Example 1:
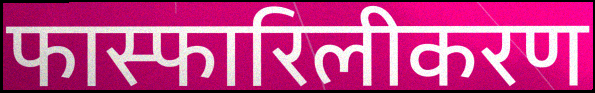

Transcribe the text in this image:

फास्फारिलीकरण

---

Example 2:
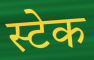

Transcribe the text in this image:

स्टेक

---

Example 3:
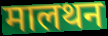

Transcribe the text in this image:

मालथन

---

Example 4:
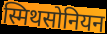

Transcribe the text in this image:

स्मिथसोनियन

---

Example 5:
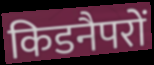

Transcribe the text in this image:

किडनैपरों